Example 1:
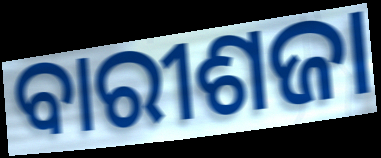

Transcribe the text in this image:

ବାରୀଶଜା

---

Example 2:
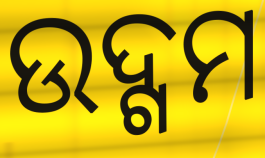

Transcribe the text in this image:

ଉଦ୍ଗମ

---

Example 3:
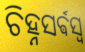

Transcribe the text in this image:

ଚିହ୍ନସର୍ଵସ୍ଵ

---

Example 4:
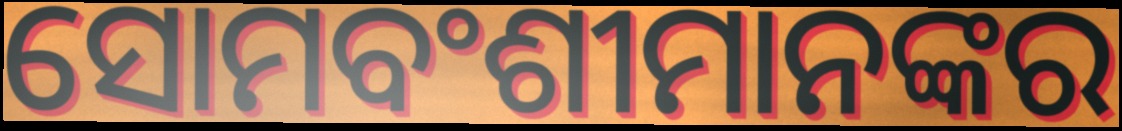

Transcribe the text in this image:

ସୋମବଂଶୀମାନଙ୍କର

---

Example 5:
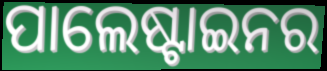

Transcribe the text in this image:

ପାଲେଷ୍ଟାଇନର